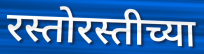
रस्तोरस्तीच्या